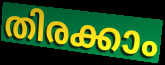
തിരക്കാം